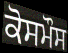
ਕੋਸਮੌਸ